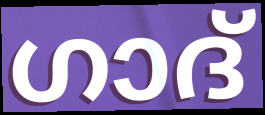
ഗാദ്